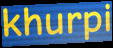
khurpi